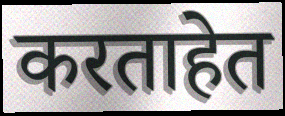
करताहेत